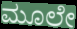
ಮೂಲೇ